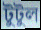
টুটুল